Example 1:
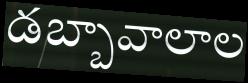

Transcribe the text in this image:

డబ్బావాలాల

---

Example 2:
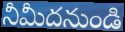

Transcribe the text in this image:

నీమీదనుండి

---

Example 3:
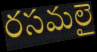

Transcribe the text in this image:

రసమలై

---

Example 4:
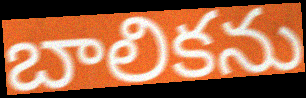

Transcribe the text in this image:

బాలికను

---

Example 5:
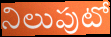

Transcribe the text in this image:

నిలుపుటో